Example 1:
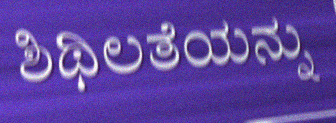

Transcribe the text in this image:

ಶಿಥಿಲತೆಯನ್ನು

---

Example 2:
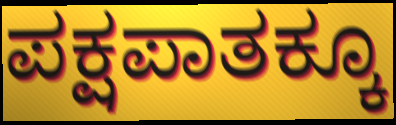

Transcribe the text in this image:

ಪಕ್ಷಪಾತಕ್ಕೂ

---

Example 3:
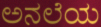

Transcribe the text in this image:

ಅನಲೆಯ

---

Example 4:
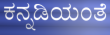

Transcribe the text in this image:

ಕನ್ನಡಿಯಂತೆ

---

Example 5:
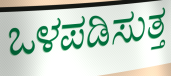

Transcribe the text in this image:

ಒಳಪಡಿಸುತ್ತ